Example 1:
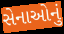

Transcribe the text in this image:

સેનાઓનું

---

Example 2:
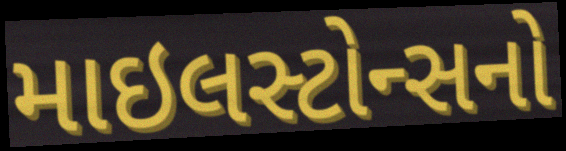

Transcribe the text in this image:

માઇલસ્ટોન્સનો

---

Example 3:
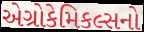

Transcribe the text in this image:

એગ્રોકેમિકલ્સનો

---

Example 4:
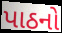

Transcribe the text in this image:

પાઠનો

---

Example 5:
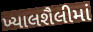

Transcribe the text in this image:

ખ્યાલશૈલીમાં